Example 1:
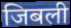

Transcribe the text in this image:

जिबली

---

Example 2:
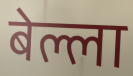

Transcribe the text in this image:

बेल्ला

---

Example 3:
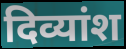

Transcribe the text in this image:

दिव्यांश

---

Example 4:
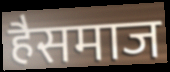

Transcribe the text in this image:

हैसमाज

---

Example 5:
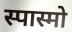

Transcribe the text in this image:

स्पास्मो